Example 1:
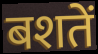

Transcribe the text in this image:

बशतें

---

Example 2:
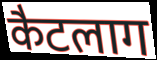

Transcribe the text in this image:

कैटलाग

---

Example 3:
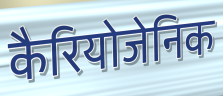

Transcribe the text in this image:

कैरियोजेनिक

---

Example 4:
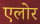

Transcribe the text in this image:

एलोर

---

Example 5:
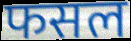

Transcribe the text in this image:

फसल